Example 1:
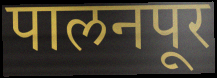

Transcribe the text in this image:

पालनपूर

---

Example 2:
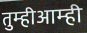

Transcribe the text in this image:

तुम्हीआम्ही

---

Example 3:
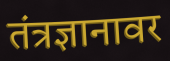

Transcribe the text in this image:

तंत्रज्ञानावर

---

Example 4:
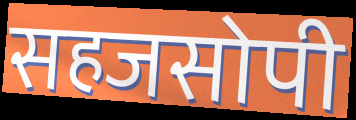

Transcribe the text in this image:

सहजसोपी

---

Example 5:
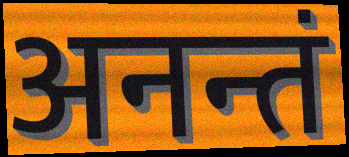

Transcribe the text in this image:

अनन्तं